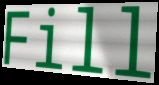
Fill